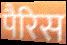
पैरिस